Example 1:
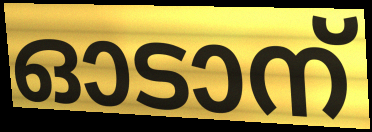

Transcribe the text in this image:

ഓടാന്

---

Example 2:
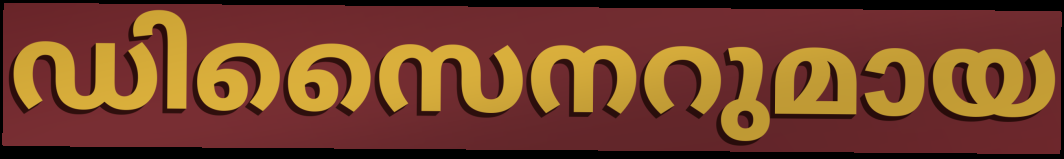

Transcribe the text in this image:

ഡിസൈനറുമായ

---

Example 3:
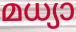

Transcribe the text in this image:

മധ്യാ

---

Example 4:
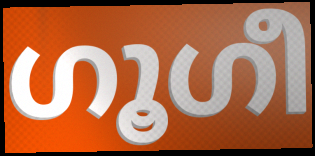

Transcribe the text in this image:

ഗൂഗീ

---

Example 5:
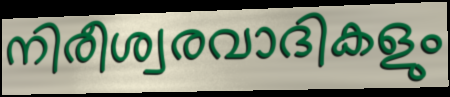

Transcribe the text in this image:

നിരീശ്വരവാദികളും